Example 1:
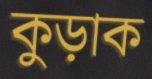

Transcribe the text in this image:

কুড়াক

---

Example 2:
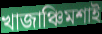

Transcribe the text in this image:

খাজাঞ্চিমশাই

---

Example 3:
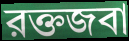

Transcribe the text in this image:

রক্তজবা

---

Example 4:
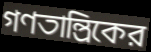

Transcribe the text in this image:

গণতান্ত্রিকের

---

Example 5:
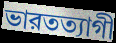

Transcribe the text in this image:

ভারতত্যাগী